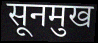
सूनमुख